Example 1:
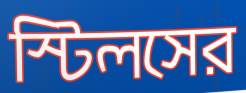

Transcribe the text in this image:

স্টিলসের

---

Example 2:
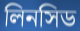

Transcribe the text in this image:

লিনসিড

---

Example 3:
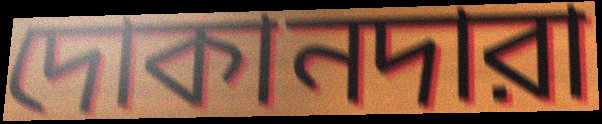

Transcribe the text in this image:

দোকানদারা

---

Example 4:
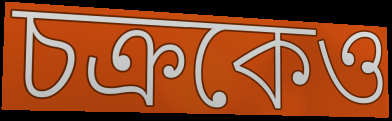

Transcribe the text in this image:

চক্রকেও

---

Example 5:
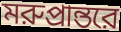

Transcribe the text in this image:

মরুপ্রান্তরে